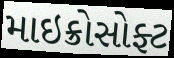
માઇક્રોસોફ્ટ